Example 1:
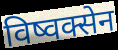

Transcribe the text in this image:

विष्वक्सेन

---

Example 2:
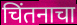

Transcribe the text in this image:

चिंतनाचा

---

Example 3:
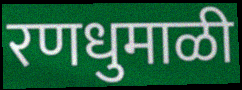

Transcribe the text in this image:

रणधुमाळी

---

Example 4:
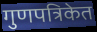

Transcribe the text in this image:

गुणपत्रिकेत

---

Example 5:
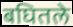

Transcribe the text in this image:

बघितले